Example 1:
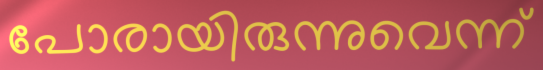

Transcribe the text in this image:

പോരായിരുന്നുവെന്ന്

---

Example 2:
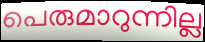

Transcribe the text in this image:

പെരുമാറുന്നില്ല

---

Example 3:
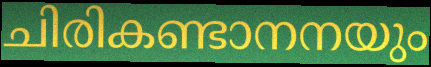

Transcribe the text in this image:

ചിരികണ്ടാനനയും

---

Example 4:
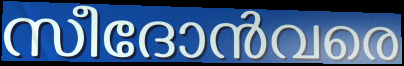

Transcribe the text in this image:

സീദോൻവരെ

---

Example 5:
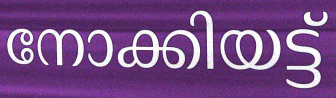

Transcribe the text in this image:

നോക്കിയട്ട്